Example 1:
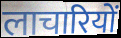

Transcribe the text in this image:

लाचारियों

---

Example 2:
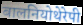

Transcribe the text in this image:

बालनियोथेरेपी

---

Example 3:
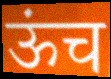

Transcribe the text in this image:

ऊंच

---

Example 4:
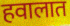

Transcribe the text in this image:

हवालात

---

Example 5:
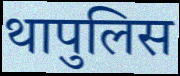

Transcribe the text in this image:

थापुलिस